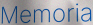
Memoria